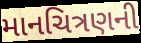
માનચિત્રણની